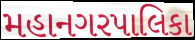
મહાનગરપાલિકા